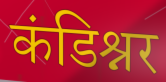
कंडिश्नर